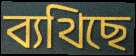
ব্যথিছে